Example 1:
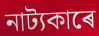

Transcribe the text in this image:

নাট্যকাৰে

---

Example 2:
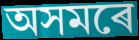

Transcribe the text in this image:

অসমৰে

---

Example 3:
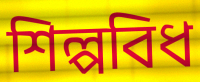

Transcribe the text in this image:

শিল্পবিধ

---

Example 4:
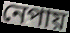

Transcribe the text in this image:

নেপায়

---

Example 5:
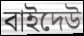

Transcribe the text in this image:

বাইদেউ